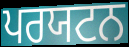
ਪਰਯਟਨ